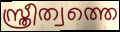
സ്ത്രീത്വത്തെ